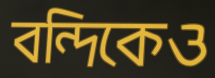
বন্দিকেও